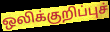
ஒலிக்குறிப்புச்